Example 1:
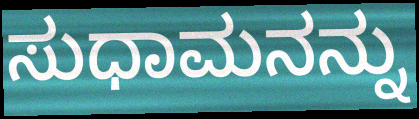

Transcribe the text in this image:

ಸುಧಾಮನನ್ನು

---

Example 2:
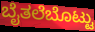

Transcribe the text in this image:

ಬೈತಲೆಬೊಟ್ಟು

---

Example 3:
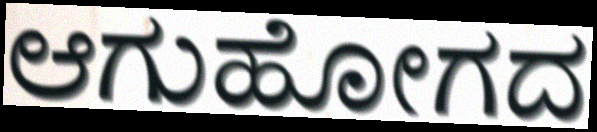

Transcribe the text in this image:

ಆಗುಹೋಗದ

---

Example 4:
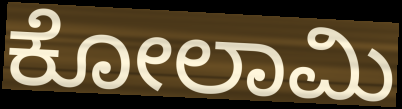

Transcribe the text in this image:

ಕೋಲಾಮಿ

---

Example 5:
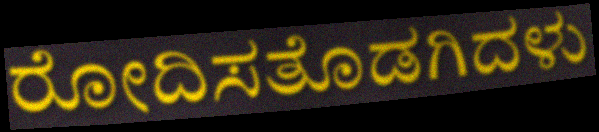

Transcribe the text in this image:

ರೋದಿಸತೊಡಗಿದಳು